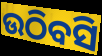
ଉଠିବସି